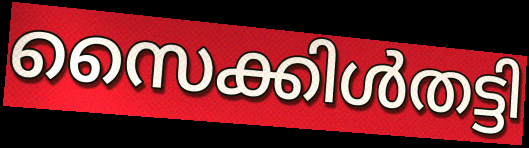
സൈക്കിൾതട്ടി